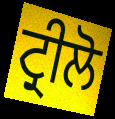
ਟ੍ਰੀਲੋ